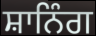
ਸ਼ਾਨਿੰਗ